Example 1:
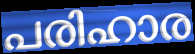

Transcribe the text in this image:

പരിഹാര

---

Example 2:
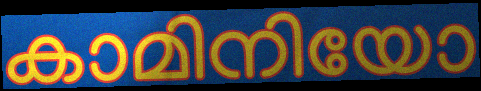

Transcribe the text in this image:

കാമിനിയോ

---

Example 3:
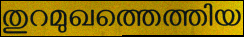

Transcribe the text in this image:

തുറമുഖത്തെത്തിയ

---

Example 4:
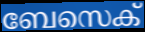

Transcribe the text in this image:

ബേസെക്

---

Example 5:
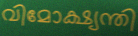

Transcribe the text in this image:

വിമോക്ഷ്യന്തി